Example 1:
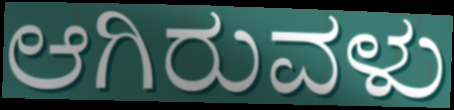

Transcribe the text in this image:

ಆಗಿರುವಳು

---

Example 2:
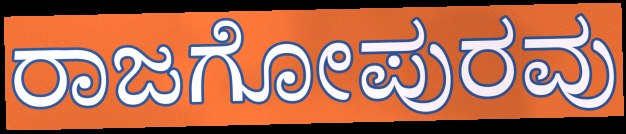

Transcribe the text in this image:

ರಾಜಗೋಪುರವು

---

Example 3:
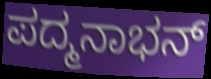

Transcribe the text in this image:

ಪದ್ಮನಾಭನ್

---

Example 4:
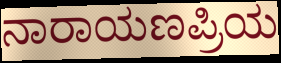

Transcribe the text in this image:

ನಾರಾಯಣಪ್ರಿಯ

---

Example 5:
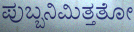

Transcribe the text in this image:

ಪುಬ್ಬನಿಮಿತ್ತತೋ